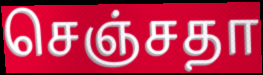
செஞ்சதா